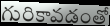
గురికావడంతో